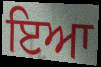
ਇਆ